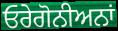
ਓਰੇਗੋਨੀਅਨਾਂ